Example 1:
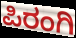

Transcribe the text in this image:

ಪಿರಂಗಿ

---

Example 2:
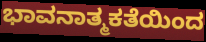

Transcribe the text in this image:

ಭಾವನಾತ್ಮಕತೆಯಿಂದ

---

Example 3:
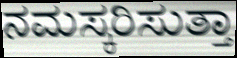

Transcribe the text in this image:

ನಮಸ್ಕರಿಸುತ್ತಾ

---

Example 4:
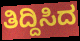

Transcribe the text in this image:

ತಿದ್ದಿಸಿದ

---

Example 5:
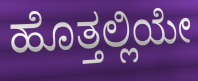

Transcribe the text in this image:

ಹೊತ್ತಲ್ಲಿಯೇ